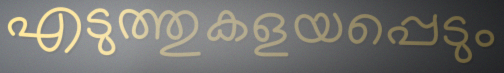
എടുത്തുകളയപ്പെടും